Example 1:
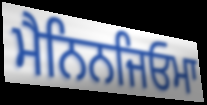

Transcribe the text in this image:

ਮੈਨਿਨਜਿਓਮਾ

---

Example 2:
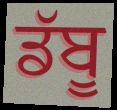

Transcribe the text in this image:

ਡੱਬੂ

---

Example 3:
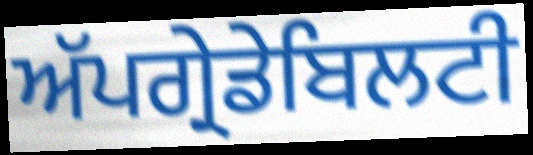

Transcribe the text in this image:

ਅੱਪਗ੍ਰੇਡੇਬਿਲਟੀ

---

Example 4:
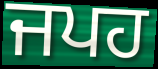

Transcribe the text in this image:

ਜਪਹ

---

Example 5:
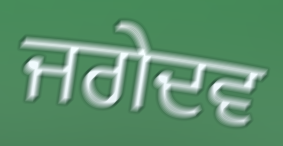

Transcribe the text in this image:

ਜਗੇਦਵ